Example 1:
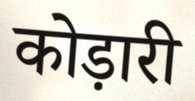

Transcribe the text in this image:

कोड़ारी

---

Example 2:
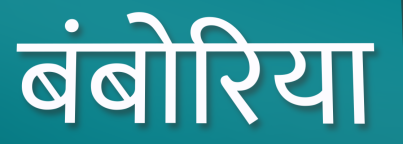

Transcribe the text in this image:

बंबोरिया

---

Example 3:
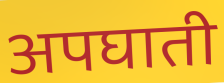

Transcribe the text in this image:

अपघाती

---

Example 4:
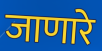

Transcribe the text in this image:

जाणारे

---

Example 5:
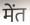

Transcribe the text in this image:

मेंत